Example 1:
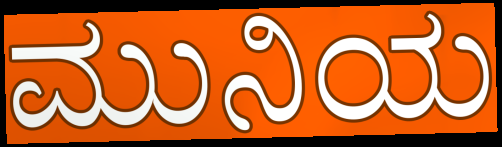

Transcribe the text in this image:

ಮುನಿಯ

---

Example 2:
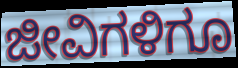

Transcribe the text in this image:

ಜೀವಿಗಳಿಗೂ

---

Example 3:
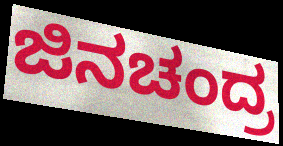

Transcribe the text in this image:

ಜಿನಚಂದ್ರ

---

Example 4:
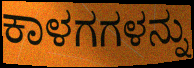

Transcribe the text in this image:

ಕಾಳಗಗಳನ್ನು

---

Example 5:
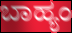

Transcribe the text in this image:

ಬಾಹ್ಯಂ